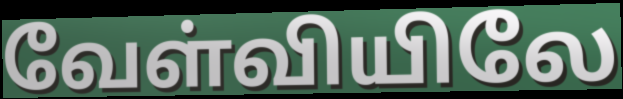
வேள்வியிலே